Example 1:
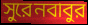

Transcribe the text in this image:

সুরেনবাবুর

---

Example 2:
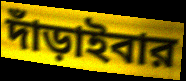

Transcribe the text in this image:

দাঁড়াইবার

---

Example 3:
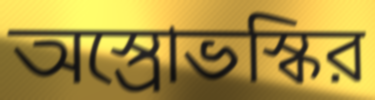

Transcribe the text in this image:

অস্ত্রোভস্কির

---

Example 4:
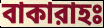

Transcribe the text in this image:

বাকারাহঃ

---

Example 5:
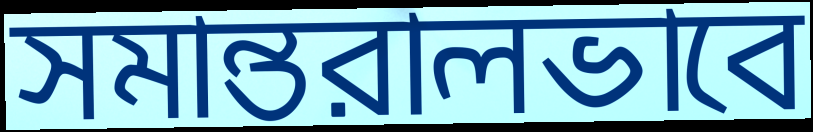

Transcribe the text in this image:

সমান্তরালভাবে